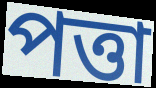
পত্তা